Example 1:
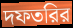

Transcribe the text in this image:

দফতরির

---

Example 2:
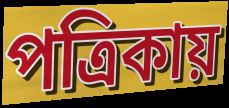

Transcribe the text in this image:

পত্রিকায়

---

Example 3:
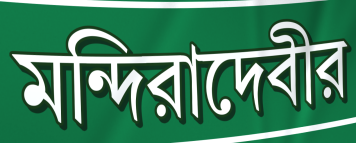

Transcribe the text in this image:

মন্দিরাদেবীর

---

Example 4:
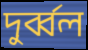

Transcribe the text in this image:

দুর্ব্বল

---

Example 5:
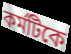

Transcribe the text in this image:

কর্মটিকে